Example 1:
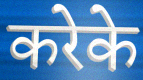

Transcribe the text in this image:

करेके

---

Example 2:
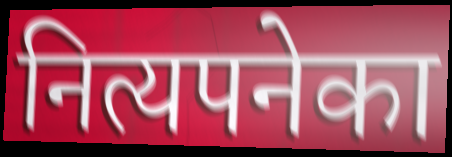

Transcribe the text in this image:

नित्यपनेका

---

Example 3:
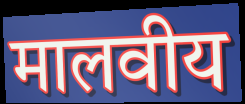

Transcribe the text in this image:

मालवीय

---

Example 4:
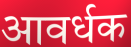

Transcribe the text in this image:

आवर्धक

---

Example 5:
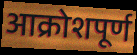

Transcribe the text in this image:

आक्रोशपूर्ण